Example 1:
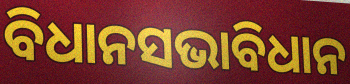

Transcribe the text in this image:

ବିଧାନସଭାବିଧାନ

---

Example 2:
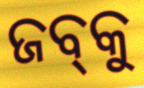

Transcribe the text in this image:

ଜବ୍‍କୁ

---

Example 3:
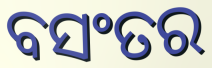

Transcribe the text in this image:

ବସଂତର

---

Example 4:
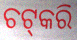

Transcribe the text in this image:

ଚଟ୍‌କରି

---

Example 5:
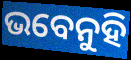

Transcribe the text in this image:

ଭବେନୁହି